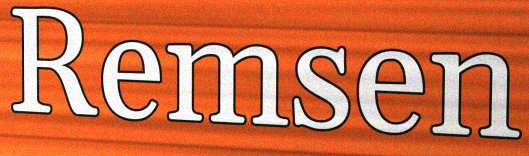
Remsen